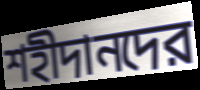
শহীদানদের